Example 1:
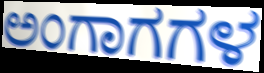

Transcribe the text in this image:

ಅಂಗಾಗಗಳ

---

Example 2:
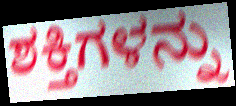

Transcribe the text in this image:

ಶಕ್ತಿಗಳನ್ನು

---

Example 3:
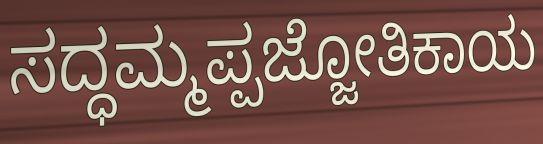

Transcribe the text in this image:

ಸದ್ಧಮ್ಮಪ್ಪಜ್ಜೋತಿಕಾಯ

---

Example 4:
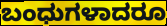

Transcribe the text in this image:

ಬಂಧುಗಳಾದರೂ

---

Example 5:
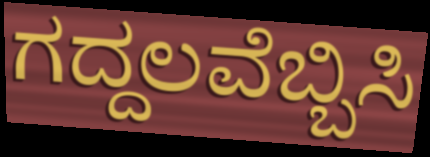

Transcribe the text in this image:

ಗದ್ದಲವೆಬ್ಬಿಸಿ